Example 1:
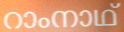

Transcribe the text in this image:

റാംനാഥ്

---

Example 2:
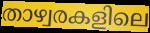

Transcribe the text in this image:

താഴ്വരകളിലെ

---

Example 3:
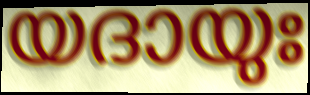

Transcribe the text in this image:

യദായുഃ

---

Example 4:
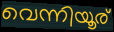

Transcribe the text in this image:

വെന്നിയൂര്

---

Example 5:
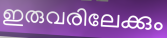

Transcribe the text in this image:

ഇരുവരിലേക്കും